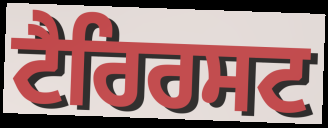
ਟੈਰਿਰਸਟ